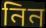
নিন